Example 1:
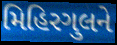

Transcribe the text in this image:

મિહિરગુલને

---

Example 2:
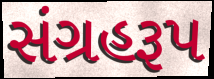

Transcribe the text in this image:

સંગ્રહરૂપ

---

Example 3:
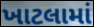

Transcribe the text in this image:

ખાટલામાં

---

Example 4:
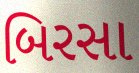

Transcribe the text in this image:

બિરસા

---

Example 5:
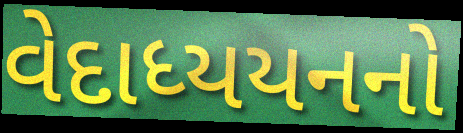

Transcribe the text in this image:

વેદાધ્યયનનો